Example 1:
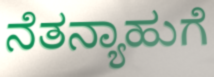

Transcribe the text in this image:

ನೆತನ್ಯಾಹುಗೆ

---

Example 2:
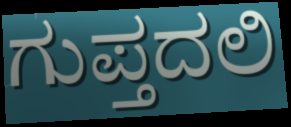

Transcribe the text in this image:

ಗುಪ್ತದಲಿ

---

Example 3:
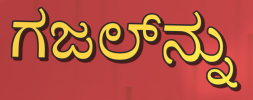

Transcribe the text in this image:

ಗಜಲ್‍ನ್ನು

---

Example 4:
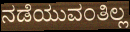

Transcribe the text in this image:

ನಡೆಯುವಂತಿಲ್ಲ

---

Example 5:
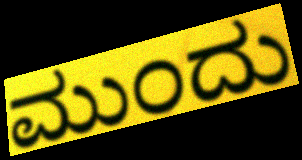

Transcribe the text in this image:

ಮುಂದು